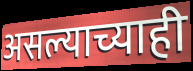
असल्याच्याही